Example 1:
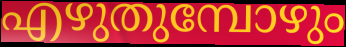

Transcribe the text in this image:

എഴുതുമ്പോഴും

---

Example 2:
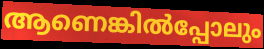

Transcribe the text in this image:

ആണെങ്കിൽപ്പോലും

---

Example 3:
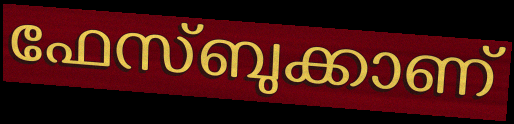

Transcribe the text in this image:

ഫേസ്ബുക്കാണ്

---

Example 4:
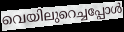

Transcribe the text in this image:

വെയിലുറെച്ചപ്പോൾ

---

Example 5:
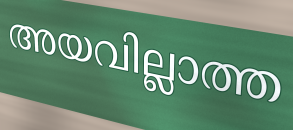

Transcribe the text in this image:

അയവില്ലാത്ത